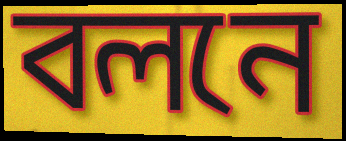
বলনে